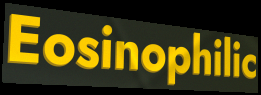
Eosinophilic